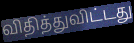
விதித்துவிட்டது